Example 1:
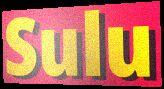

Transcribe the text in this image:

Sulu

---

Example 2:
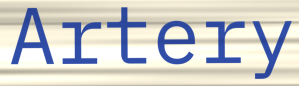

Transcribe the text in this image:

Artery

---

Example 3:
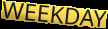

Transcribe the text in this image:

WEEKDAY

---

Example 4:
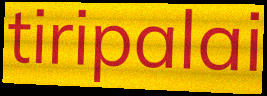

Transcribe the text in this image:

tiripalai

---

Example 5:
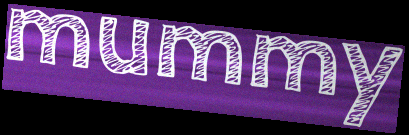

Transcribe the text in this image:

mummy